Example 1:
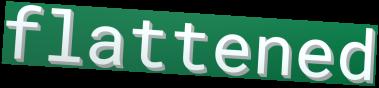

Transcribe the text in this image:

flattened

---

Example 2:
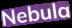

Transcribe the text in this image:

Nebula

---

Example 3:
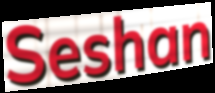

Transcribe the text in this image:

Seshan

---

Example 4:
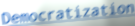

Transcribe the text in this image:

Democratization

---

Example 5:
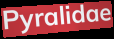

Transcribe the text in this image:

Pyralidae